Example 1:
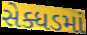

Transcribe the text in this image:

સેક્ધડમાં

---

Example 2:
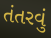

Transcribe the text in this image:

તંતરવું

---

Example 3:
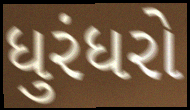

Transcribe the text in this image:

ધુરંધરો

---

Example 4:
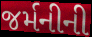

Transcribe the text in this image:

જર્મનીની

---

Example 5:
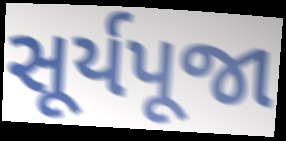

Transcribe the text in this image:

સૂર્યપૂજા